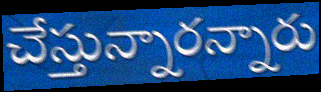
చేస్తున్నారన్నారు